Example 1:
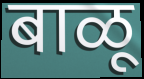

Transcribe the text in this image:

बाळू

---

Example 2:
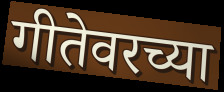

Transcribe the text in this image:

गीतेवरच्या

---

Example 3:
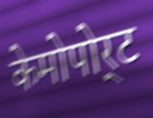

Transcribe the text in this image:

केमोपोर्ट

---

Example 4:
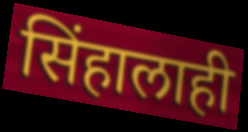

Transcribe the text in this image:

सिंहालाही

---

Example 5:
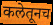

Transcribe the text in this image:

कलेतूनच